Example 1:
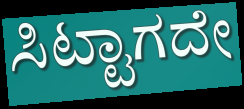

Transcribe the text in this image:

ಸಿಟ್ಟಾಗದೇ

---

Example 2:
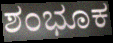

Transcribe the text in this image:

ಶಂಭೂಕ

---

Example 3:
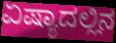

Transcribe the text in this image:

ಏಷ್ಯಾದಲ್ಲಿನ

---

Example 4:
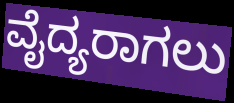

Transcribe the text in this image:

ವೈದ್ಯರಾಗಲು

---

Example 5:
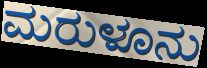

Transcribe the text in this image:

ಮರುಳೂನು